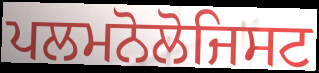
ਪਲਮਨੋਲੋਜਿਸਟ